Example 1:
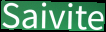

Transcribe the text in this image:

Saivite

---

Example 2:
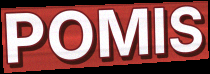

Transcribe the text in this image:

POMIS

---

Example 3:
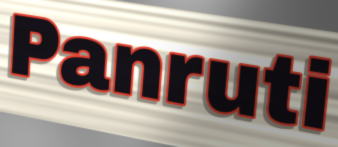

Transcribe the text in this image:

Panruti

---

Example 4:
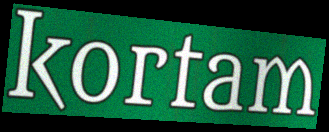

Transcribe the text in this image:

kortam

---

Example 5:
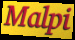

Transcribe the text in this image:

Malpi